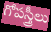
గోపస్త్రీలు